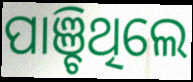
ପାଞ୍ଚିଥିଲେ